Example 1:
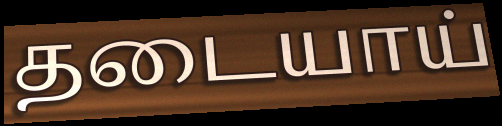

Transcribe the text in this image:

தடையாய்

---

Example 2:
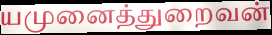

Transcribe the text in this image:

யமுனைத்துறைவன்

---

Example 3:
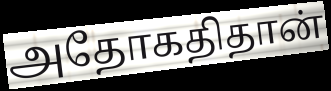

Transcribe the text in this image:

அதோகதிதான்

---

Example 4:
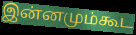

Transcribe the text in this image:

இன்னமும்கூட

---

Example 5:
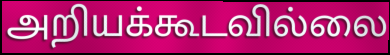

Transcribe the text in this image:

அறியக்கூடவில்லை